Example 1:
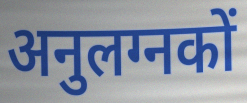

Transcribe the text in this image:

अनुलग्नकों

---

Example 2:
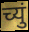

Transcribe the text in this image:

च्युं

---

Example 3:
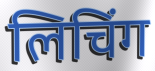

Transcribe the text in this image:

लिचिंग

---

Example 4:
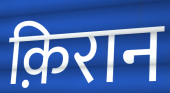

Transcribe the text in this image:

क़िरान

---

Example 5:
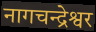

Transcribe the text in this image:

नागचन्द्रेश्वर